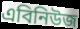
এবিনিউজ